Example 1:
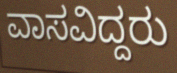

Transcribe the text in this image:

ವಾಸವಿದ್ದರು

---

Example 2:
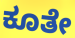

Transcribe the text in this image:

ಕೂತೇ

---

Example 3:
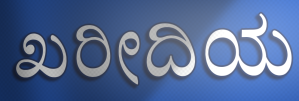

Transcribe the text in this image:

ಖರೀದಿಯ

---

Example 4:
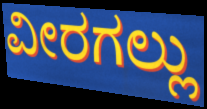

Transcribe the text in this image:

ವೀರಗಲ್ಲು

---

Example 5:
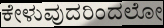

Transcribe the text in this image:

ಕೇಳುವುದರಿಂದಲೋ